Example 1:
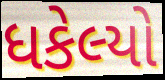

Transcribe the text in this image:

ધકેલ્યો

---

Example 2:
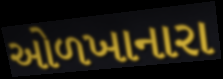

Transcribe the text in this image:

ઓળખાનારા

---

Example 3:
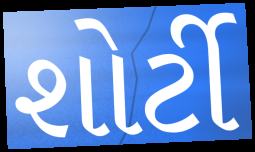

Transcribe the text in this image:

શોર્ટી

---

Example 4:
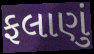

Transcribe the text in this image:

ફલાણું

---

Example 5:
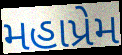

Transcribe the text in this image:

મહાપ્રેમ